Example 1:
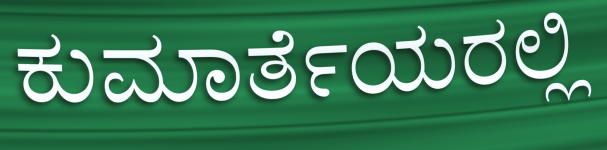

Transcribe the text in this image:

ಕುಮಾರ್ತೆಯರಲ್ಲಿ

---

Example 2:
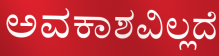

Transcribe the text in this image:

ಅವಕಾಶವಿಲ್ಲದೆ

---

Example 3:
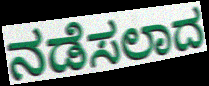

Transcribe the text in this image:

ನಡೆಸಲಾದ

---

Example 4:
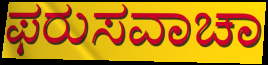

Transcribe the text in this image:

ಫರುಸವಾಚಾ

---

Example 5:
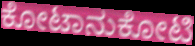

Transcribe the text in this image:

ಕೋಟಾನುಕೋಟಿ